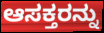
ಆಸಕ್ತರನ್ನು